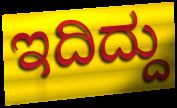
ಇದಿದ್ದು